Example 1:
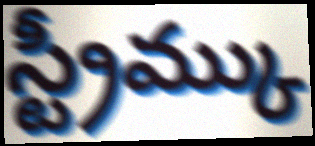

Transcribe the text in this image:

స్ట్రీమ్కు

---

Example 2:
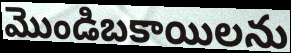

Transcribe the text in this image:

మొండిబకాయిలను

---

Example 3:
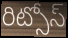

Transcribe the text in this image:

రిట్సోస్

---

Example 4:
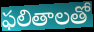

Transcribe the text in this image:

ఫలితాలతో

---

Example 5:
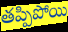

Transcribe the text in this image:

తప్పిపోయి